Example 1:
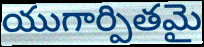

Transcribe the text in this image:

యుగార్పితమై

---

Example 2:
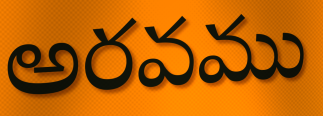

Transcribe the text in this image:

అరవము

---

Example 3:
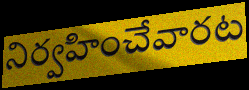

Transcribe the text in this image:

నిర్వహించేవారట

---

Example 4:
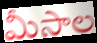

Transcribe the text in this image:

మీసాల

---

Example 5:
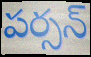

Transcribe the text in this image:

పర్సన్